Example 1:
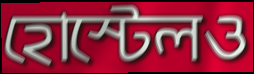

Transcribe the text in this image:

হোস্টেলও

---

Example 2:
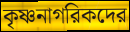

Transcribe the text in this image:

কৃষ্ণনাগরিকদের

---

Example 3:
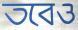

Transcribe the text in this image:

তবেও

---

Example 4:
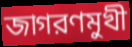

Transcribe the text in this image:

জাগরণমুখী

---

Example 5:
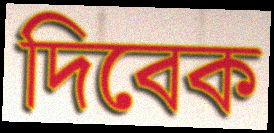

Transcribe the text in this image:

দিবেক